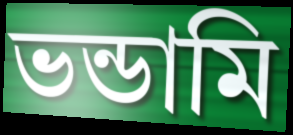
ভন্ডামি